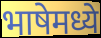
भाषेमध्ये